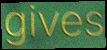
gives